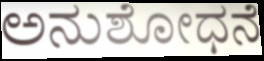
ಅನುಶೋಧನೆ